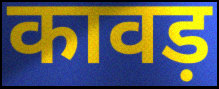
कावड़